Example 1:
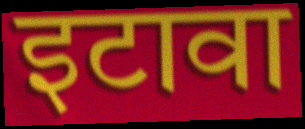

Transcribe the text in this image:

इटावा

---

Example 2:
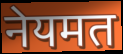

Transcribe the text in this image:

नेयमत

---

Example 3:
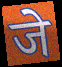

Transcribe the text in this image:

जे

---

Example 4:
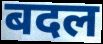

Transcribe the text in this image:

बदल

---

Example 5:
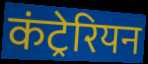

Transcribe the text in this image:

कंट्रेरियन